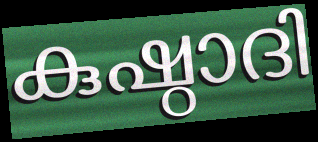
കുഷ്ഠാദി